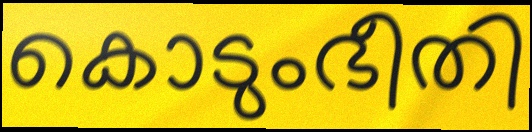
കൊടുംഭീതി